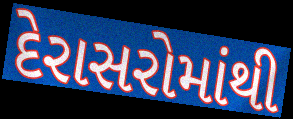
દેરાસરોમાંથી